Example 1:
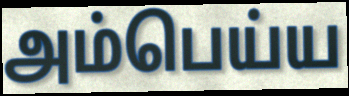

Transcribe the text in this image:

அம்பெய்ய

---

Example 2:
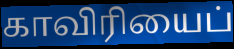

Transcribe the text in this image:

காவிரியைப்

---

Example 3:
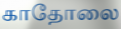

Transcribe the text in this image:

காதோலை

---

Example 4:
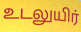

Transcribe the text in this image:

உடலுயிர்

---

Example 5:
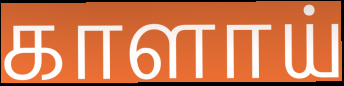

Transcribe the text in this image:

காளாய்